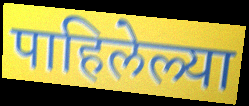
पाहिलेल्या